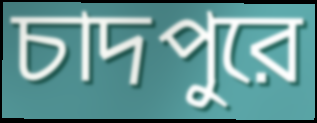
চাদপুরে